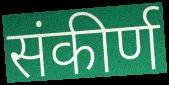
संकीर्ण